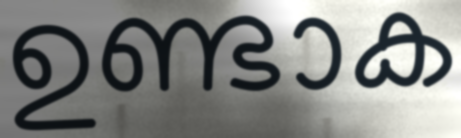
ഉണ്ടാക